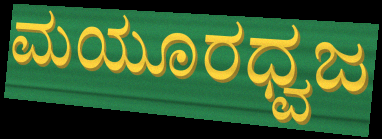
ಮಯೂರಧ್ವಜ